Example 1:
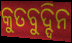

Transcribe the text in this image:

କୁତବୁଦ୍ଦିନ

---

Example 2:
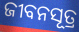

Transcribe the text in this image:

ଜୀବନସୂତ୍ର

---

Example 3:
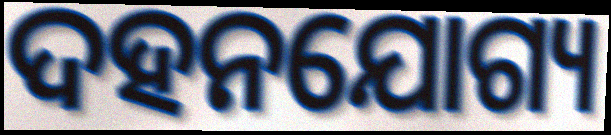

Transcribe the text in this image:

ଦହନଯୋଗ୍ୟ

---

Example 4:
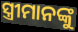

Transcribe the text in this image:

ସ୍ତ୍ରୀମାନଙ୍କୁ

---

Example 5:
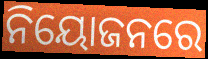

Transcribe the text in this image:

ନିୟୋଜନରେ